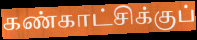
கண்காட்சிக்குப்